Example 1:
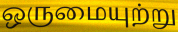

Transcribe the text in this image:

ஒருமையுற்று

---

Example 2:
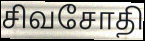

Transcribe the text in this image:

சிவசோதி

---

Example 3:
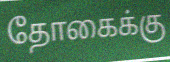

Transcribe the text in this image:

தோகைக்கு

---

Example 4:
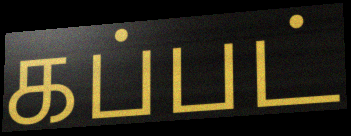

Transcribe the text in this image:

கப்பட்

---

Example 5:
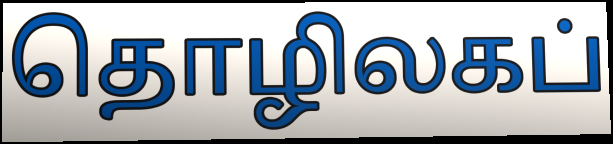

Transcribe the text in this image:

தொழிலகப்